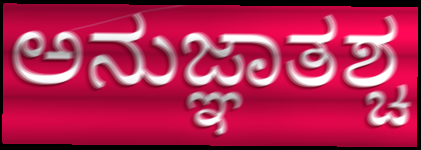
ಅನುಜ್ಞಾತಶ್ಚ